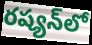
రష్యన్‌లో